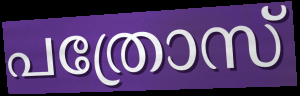
പത്രോസ്